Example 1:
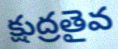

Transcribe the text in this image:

క్షుద్రతైవ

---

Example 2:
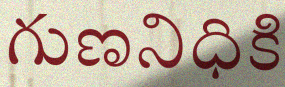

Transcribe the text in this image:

గుణనిధికి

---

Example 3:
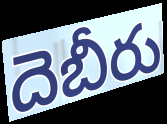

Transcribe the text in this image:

దెబీరు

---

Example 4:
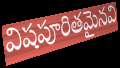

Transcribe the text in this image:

విషపూరితమైనవి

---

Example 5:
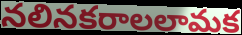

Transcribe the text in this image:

నలినకరాలలామక